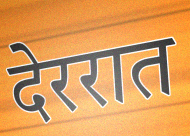
देररात